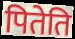
पितेति